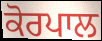
ਕੋਰਪਾਲ